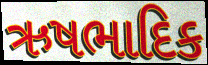
ઋષભાદિક